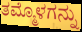
ತಮ್ಮೊಳಗನ್ನು